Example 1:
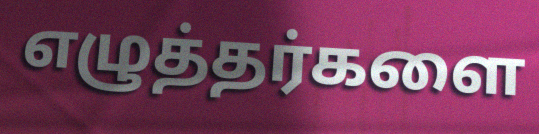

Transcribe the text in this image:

எழுத்தர்களை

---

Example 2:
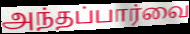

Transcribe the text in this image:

அந்தப்பார்வை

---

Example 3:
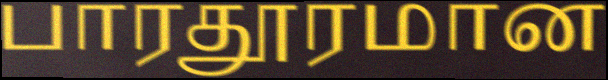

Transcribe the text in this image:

பாரதூரமான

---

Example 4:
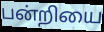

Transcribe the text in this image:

பன்றியை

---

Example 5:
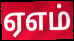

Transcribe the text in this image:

ஏஎம்